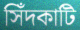
সিঁদকাটি